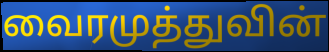
வைரமுத்துவின்